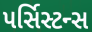
પર્સિસ્ટન્સ